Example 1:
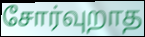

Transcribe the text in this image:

சோர்வுறாத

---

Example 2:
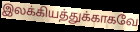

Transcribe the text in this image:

இலக்கியத்துக்காகவே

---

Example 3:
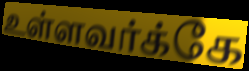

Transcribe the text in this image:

உள்ளவர்க்கே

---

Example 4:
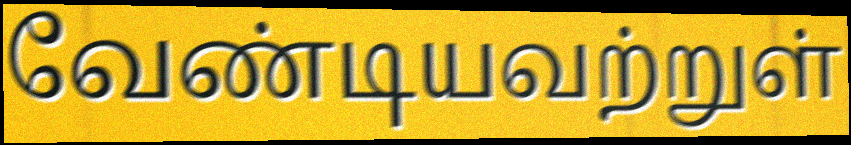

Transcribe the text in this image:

வேண்டியவற்றுள்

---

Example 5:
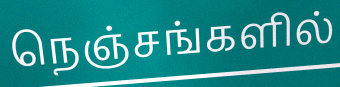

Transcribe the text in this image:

நெஞ்சங்களில்